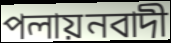
পলায়নবাদী